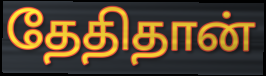
தேதிதான்